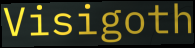
Visigoth